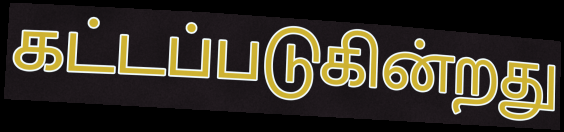
கட்டப்படுகின்றது